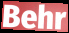
Behr